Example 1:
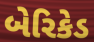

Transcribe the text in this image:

બેરિકેડ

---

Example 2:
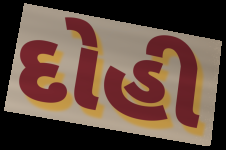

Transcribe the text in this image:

દોહી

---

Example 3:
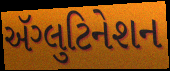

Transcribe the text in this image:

ઍગ્લુટિનેશન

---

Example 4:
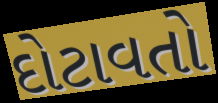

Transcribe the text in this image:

દોટાવતો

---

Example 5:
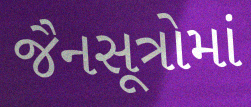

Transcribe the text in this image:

જૈનસૂત્રોમાં